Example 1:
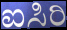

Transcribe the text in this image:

ಐಸಿರಿ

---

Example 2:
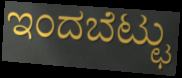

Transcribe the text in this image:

ಇಂದಬೆಟ್ಟು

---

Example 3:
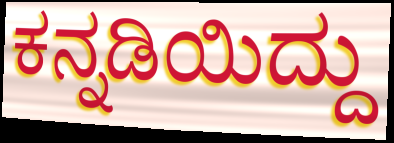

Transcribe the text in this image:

ಕನ್ನಡಿಯಿದ್ದು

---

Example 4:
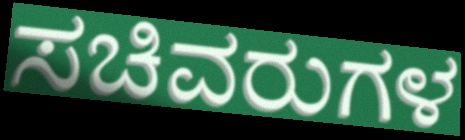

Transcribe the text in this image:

ಸಚಿವರುಗಳ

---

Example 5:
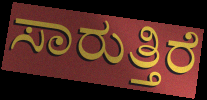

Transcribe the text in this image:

ಸಾರುತ್ತಿರೆ